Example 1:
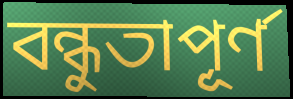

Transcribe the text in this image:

বন্ধুতাপূর্ণ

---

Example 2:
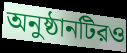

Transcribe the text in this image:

অনুষ্ঠানটিরও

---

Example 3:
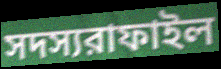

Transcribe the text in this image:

সদস্যরাফাইল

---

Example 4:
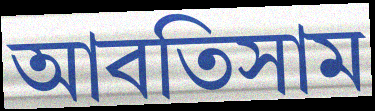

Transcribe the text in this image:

আবতিসাম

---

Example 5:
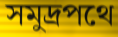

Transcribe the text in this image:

সমুদ্রপথে